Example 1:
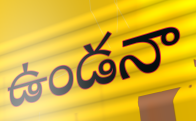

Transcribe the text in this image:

ఉండనా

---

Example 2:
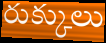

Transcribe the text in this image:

రుక్కులు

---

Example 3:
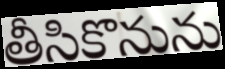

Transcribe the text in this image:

తీసికొనును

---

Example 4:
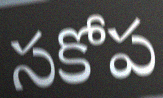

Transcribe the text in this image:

సకోప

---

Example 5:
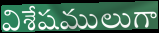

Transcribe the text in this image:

విశేషములుగా